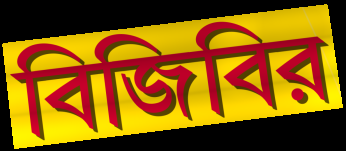
বিজিবির